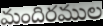
మందిరముల